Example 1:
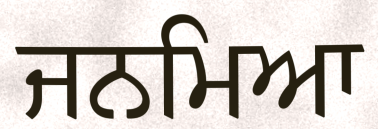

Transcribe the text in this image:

ਜਨਮਿਆ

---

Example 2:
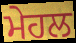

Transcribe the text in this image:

ਮੇਹਲ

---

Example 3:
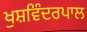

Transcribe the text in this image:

ਖੁਸ਼ਵਿੰਦਰਪਾਲ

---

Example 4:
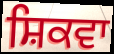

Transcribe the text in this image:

ਸ਼ਿਕਵਾ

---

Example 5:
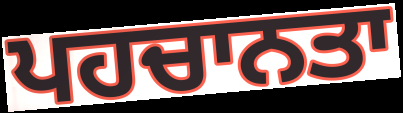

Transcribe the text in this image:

ਪਹਚਾਨਤਾ